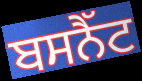
ਬਸਨੈੱਟ